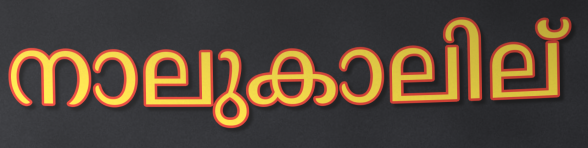
നാലുകാലില്